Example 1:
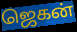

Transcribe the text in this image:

ஜெகன்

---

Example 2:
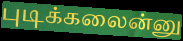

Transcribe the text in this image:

புடிக்கலைன்னு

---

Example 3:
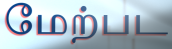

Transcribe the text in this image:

மேற்பட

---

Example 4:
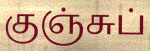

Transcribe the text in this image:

குஞ்சுப்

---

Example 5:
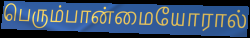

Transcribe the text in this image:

பெரும்பான்மையோரால்